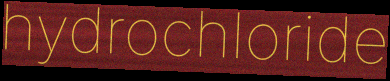
hydrochloride